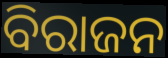
ବିରାଜନ